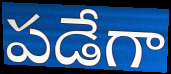
పడేగా